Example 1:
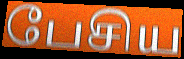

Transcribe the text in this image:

பேசிய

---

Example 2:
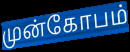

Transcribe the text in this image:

முன்கோபம்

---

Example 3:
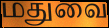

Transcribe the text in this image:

மதுவை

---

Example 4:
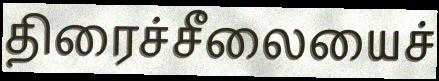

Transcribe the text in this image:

திரைச்சீலையைச்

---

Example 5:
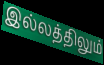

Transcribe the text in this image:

இல்லத்திலும்